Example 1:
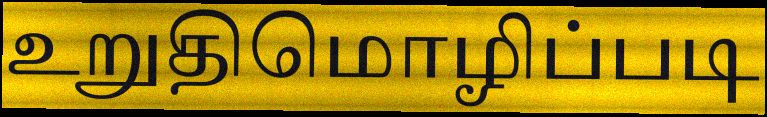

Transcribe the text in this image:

உறுதிமொழிப்படி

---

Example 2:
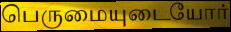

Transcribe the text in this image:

பெருமையுடையோர்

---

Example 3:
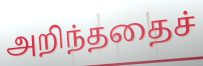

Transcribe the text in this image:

அறிந்ததைச்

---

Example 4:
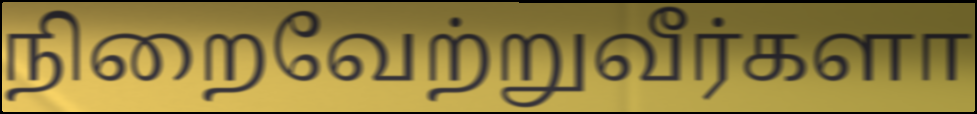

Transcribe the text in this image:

நிறைவேற்றுவீர்களா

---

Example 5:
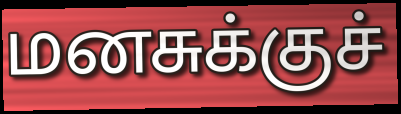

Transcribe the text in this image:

மனசுக்குச்